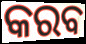
କରବ